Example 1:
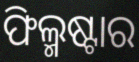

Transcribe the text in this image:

ଫିଲ୍ମଷ୍ଟାର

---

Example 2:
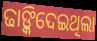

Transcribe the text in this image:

ଢାଙ୍କିଦେଇଥିଲା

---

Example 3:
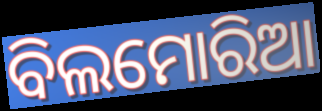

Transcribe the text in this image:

ବିଲମୋରିଆ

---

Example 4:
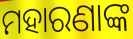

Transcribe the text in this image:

ମହାରଣାଙ୍କ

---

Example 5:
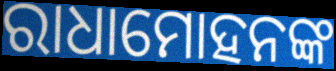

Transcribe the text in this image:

ରାଧାମୋହନଙ୍କ